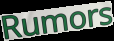
Rumors